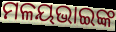
ମଳୟଭାଇଙ୍କ